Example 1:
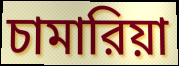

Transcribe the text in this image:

চামারিয়া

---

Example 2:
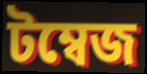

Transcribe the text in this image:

টম্বেজ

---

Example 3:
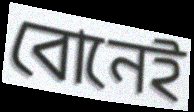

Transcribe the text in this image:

বোনেই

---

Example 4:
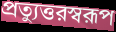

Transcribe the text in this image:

প্রত্যুত্তরস্বরূপ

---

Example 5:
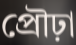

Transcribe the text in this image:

প্রৌঢ়া